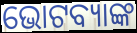
ଭୋଟବ୍ୟାଙ୍କ